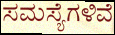
ಸಮಸ್ಯೆಗಳಿವೆ